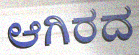
ಆಗಿರದ